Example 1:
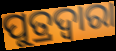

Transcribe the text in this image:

ପୁତ୍ରଦ୍ୱାରା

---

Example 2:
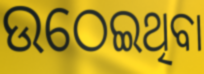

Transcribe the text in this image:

ଉଠେଇଥିବା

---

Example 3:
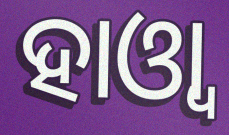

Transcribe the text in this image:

ହାଓ୍ୱା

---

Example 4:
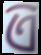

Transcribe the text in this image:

ଏି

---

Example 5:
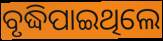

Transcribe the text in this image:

ବୃଦ୍ଧିପାଇଥିଲେ